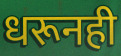
धरूनही